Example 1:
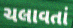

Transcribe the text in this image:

ચલાવતાં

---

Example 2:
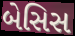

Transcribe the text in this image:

બેસિસ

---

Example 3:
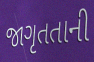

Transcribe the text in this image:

જાગૃતતાની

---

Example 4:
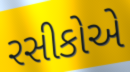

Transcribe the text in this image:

રસીકોએ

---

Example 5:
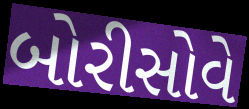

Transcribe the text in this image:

બોરીસોવે